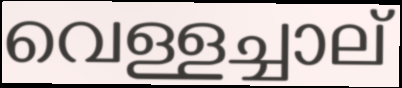
വെള്ളച്ചാല്